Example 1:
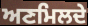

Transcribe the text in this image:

ਅਣਮਿਲਦੇ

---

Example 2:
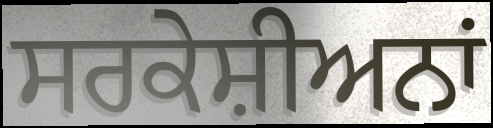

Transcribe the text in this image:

ਸਰਕੇਸ਼ੀਅਨਾਂ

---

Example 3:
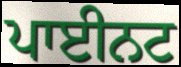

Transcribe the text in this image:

ਪਾਈਨਟ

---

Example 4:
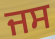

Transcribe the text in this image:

ਜਸ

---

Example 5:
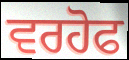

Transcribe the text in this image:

ਵਰਹੋਫ